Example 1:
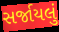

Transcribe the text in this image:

સર્જાયલું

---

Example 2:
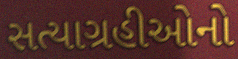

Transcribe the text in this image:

સત્યાગ્રહીઓનો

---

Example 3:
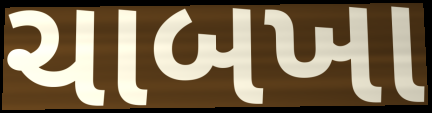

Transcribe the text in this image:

ચાબખા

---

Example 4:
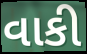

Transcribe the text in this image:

વાકી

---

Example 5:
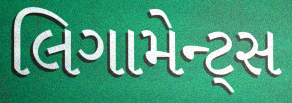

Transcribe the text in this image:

લિગામેન્ટ્સ